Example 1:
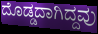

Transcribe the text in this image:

ದೊಡ್ಡದಾಗಿದ್ದವು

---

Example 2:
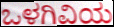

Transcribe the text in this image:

ಒಳಗಿವಿಯ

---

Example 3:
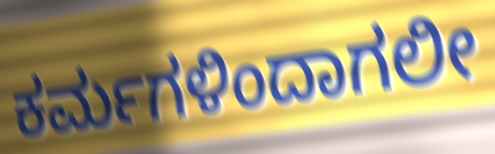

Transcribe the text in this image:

ಕರ್ಮಗಳಿಂದಾಗಲೀ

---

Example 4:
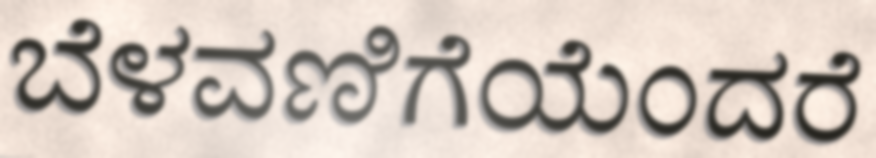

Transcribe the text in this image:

ಬೆಳವಣಿಗೆಯೆಂದರೆ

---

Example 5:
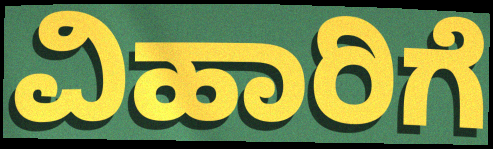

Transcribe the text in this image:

ವಿಹಾರಿಗೆ